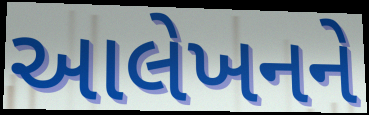
આલેખનને